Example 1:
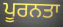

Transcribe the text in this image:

ਪੂਰਨਤਾ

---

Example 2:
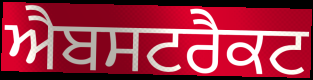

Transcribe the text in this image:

ਐਬਸਟਰੈਕਟ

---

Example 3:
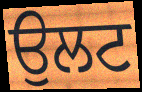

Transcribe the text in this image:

ਉਲਟ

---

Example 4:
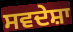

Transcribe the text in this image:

ਸਵਦੇਸ਼ਾ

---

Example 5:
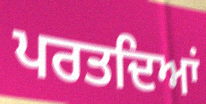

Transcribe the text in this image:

ਪਰਤਦਿਆਂ